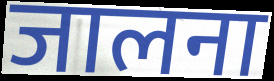
जालना